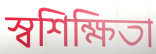
স্বশিক্ষিতা